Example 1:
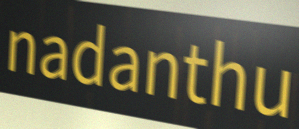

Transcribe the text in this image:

nadanthu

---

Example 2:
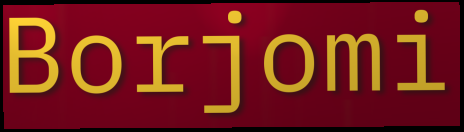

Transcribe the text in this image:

Borjomi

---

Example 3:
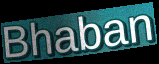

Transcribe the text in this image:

Bhaban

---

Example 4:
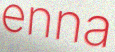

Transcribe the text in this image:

enna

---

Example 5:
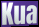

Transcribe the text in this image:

Kua